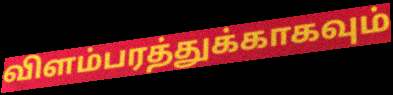
விளம்பரத்துக்காகவும்